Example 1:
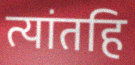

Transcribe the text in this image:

त्यांतहि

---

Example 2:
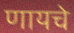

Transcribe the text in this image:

णायचे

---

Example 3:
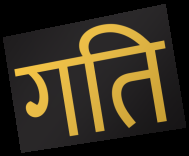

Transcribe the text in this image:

गति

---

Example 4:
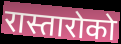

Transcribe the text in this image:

रास्तारोको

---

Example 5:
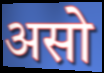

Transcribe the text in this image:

असो